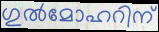
ഗുൽമോഹറിന്